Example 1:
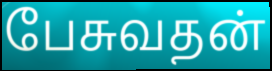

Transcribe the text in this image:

பேசுவதன்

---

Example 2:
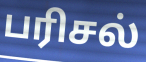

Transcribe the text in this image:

பரிசல்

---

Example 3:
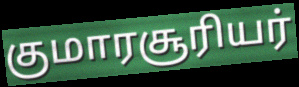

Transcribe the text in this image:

குமாரசூரியர்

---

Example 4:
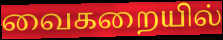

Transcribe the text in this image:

வைகறையில்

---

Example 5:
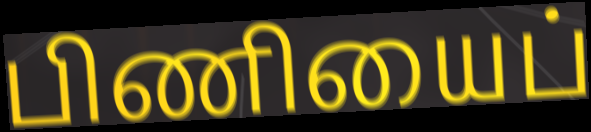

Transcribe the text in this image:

பிணியைப்